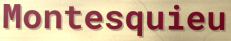
Montesquieu